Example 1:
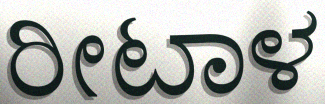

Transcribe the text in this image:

ರೀಟಾಳ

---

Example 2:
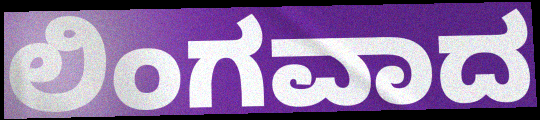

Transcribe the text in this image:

ಲಿಂಗವಾದ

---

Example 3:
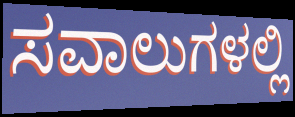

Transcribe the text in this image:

ಸವಾಲುಗಳಲ್ಲಿ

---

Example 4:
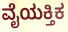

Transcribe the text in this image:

ವೈಯಕ್ತಿಕ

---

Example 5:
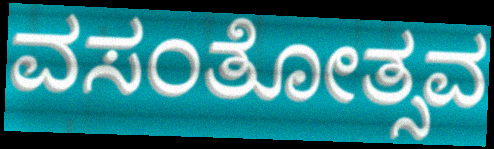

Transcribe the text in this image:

ವಸಂತೋತ್ಸವ